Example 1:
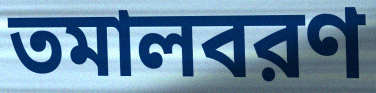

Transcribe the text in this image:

তমালবরণ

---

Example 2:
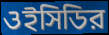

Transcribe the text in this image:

ওইসিডির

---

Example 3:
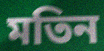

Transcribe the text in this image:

মতিন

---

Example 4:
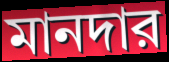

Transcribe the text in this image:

মানদার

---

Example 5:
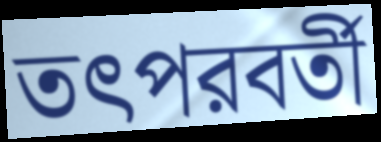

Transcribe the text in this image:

তৎপরবর্তী